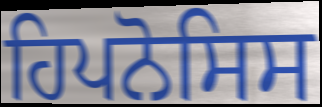
ਹਿਪਨੋਸਿਸ